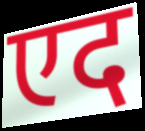
एद